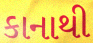
કાનાથી